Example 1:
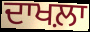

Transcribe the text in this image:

ਦਾਖਲ਼ਾ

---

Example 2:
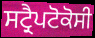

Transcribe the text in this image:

ਸਟ੍ਰੈਪਟੋਕੋਸੀ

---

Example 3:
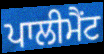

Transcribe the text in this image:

ਪਾਲੀਮੈਂਟ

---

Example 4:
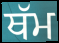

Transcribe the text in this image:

ਥੱਮ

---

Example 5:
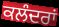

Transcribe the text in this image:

ਕਲੰਦਰਾਂ